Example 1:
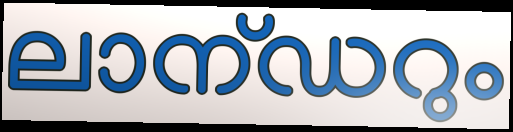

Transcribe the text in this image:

ലാന്ഡറും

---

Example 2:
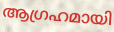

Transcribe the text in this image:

ആഗ്രഹമായി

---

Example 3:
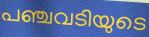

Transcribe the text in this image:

പഞ്ചവടിയുടെ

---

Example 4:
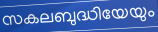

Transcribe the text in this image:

സകലബുദ്ധിയേയും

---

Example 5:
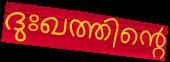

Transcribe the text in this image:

ദുഃഖത്തിന്റെ